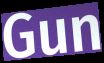
Gun